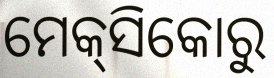
ମେକ୍‌ସିକୋରୁ